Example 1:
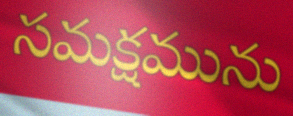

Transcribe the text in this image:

సమక్షమును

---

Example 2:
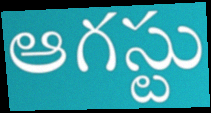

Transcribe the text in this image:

ఆగస్టు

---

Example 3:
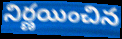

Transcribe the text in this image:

నిర్ణయించిన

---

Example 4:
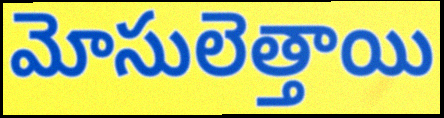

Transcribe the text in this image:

మోసులెత్తాయి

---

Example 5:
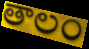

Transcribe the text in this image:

తాలం